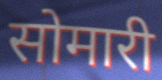
सोमारी